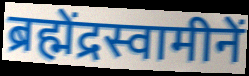
ब्रह्मेंद्रस्वामीनें